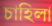
চাহিলা